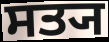
ਸਤ੍ਯ